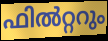
ഫിൽറ്ററും